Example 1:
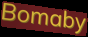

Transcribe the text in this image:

Bomaby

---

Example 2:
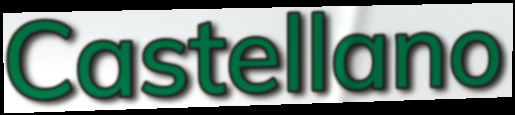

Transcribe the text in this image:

Castellano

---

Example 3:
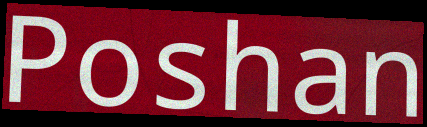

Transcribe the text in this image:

Poshan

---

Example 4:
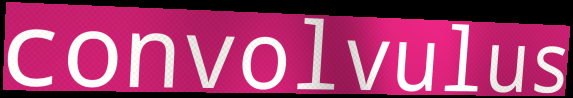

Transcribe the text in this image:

convolvulus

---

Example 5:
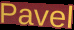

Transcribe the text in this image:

Pavel